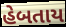
હેબતાય